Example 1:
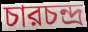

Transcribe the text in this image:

চারচন্দ্র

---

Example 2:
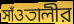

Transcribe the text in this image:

সাঁওতালীর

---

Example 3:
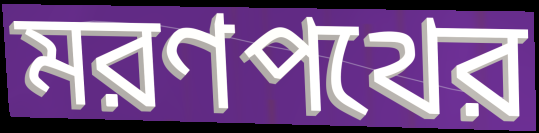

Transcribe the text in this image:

মরণপথের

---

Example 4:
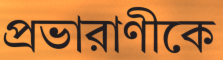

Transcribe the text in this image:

প্রভারাণীকে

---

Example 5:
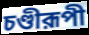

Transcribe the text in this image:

চণ্ডীরূপী